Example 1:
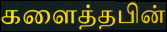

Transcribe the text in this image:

களைத்தபின்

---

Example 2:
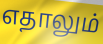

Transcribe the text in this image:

எதாலும்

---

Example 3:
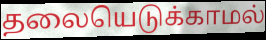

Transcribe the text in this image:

தலையெடுக்காமல்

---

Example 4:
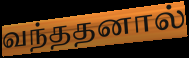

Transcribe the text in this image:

வந்ததனால்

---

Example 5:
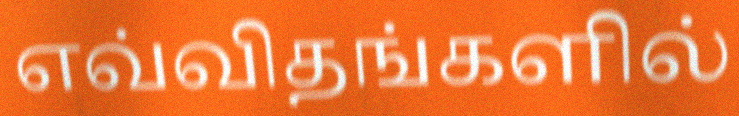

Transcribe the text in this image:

எவ்விதங்களில்